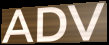
ADV